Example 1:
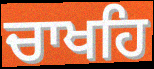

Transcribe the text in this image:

ਚਾਖਹਿ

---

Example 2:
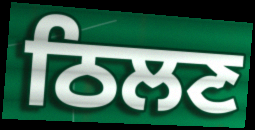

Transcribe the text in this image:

ਠਿਲਣ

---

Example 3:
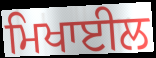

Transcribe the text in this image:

ਮਿਖਾਈਲ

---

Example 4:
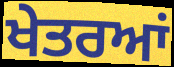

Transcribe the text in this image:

ਖੇਤਰਆਂ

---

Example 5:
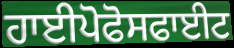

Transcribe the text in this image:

ਹਾਈਪੋਫੋਸਫਾਈਟ